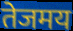
तेजमय